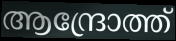
ആന്ദ്രോത്ത്